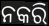
ନକରି